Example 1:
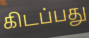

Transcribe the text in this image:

கிடப்பது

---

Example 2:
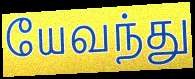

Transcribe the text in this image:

யேவந்து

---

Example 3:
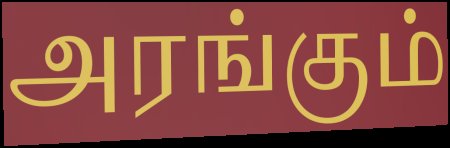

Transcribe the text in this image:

அரங்கும்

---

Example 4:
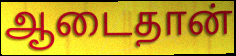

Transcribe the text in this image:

ஆடைதான்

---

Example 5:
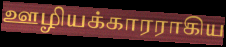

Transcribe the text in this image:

ஊழியக்காரராகிய